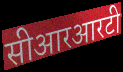
सीआरआरटी